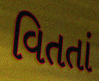
વિતતાં